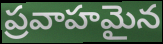
ప్రవాహమైన